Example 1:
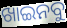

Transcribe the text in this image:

ଖାଇନବୁ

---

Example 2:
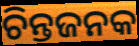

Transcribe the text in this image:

ଚିନ୍ତଜନକ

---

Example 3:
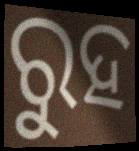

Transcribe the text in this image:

ରୁହ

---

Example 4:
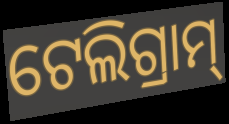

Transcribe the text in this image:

ଟେଲିଗ୍ରାମ୍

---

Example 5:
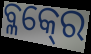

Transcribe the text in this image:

ବ୍ଳକ୍‍ରେ